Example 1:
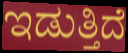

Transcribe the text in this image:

ಇಡುತ್ತಿದೆ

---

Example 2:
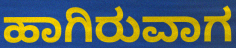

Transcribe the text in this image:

ಹಾಗಿರುವಾಗ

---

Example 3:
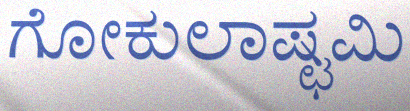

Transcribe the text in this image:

ಗೋಕುಲಾಷ್ಟಮಿ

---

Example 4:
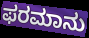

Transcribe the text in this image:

ಫರಮಾನು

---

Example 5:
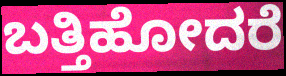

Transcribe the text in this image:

ಬತ್ತಿಹೋದರೆ